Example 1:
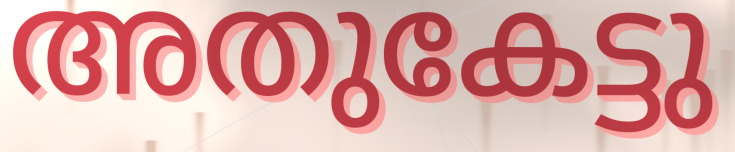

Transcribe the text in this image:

അതുകേട്ടു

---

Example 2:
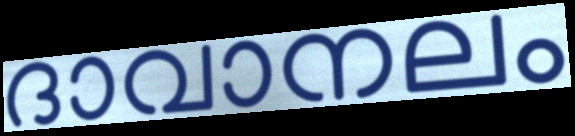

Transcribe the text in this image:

ദാവാനലം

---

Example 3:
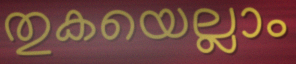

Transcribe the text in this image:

തുകയെല്ലാം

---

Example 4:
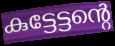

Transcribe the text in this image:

കുട്ടേട്ടന്റെ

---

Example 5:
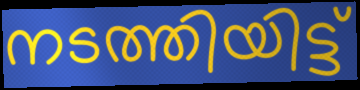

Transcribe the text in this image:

നടത്തിയിട്ട്